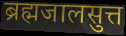
ब्रह्मजालसुत्त